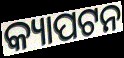
କ୍ୟାପଟନ